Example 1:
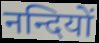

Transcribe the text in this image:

नन्दियों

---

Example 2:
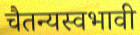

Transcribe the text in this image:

चैतन्यस्वभावी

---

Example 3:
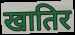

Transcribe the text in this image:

खातिर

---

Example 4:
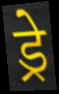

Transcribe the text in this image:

ड्रे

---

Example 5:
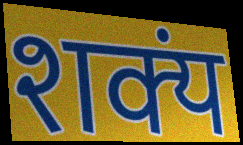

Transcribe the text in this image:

शक्यं